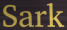
Sark